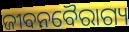
ଜୀବନବୈରାଗ୍ୟ